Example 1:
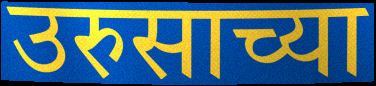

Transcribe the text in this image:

उरुसाच्या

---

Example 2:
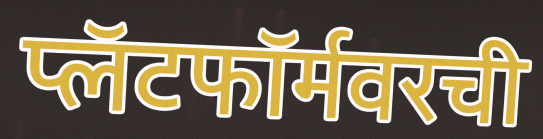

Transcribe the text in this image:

प्लॅटफॉर्मवरची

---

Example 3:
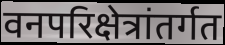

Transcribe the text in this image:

वनपरिक्षेत्रांतर्गत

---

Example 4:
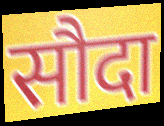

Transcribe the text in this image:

सौदा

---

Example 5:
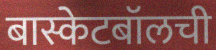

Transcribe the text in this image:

बास्केटबॉलची